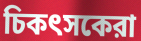
চিকৎসকেরা